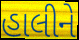
હાલીને